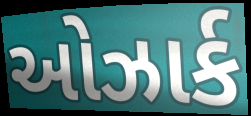
ઓઝાર્ક